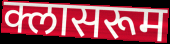
क्लासरूम